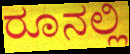
ರೂನಲ್ಲಿ